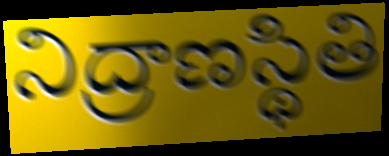
నిద్రాణస్థితి